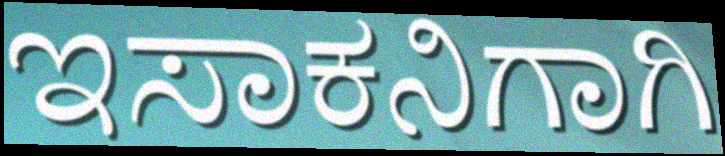
ಇಸಾಕನಿಗಾಗಿ